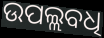
ଉପଲ୍ଲବଧି